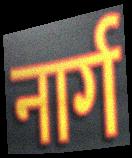
नार्ग